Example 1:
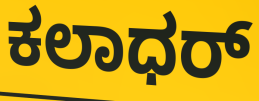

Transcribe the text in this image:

ಕಲಾಧರ್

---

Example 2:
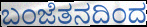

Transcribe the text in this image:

ಬಂಜೆತನದಿಂದ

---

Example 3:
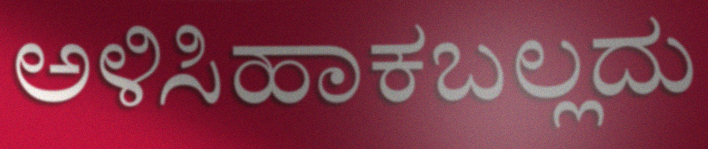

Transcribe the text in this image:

ಅಳಿಸಿಹಾಕಬಲ್ಲದು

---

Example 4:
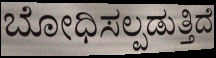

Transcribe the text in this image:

ಬೋಧಿಸಲ್ಪಡುತ್ತಿದೆ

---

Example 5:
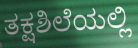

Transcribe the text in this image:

ತಕ್ಷಶಿಲೆಯಲ್ಲಿ